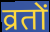
व्रतों